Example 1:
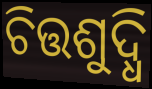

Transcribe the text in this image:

ଚିତ୍ତଶୁଦ୍ଧି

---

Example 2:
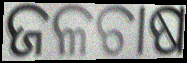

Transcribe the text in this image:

ଜଳଚାଷ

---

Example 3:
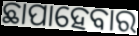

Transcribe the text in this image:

ଛାପାହେବାର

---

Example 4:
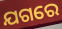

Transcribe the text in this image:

ଯଗରେ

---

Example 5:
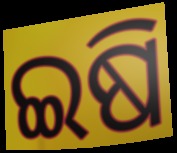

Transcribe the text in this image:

ଇଷି